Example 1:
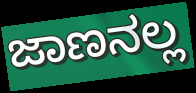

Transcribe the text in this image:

ಜಾಣನಲ್ಲ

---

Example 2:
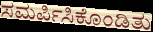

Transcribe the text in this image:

ಸಮರ್ಪಿಸಿಕೊಂಡಿತು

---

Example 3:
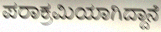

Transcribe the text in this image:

ಪರಾಕ್ರಮಿಯಾಗಿದ್ದಾನೆ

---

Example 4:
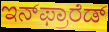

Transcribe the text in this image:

ಇನ್‌ಫ್ರಾರೆಡ್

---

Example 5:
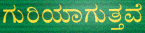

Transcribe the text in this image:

ಗುರಿಯಾಗುತ್ತವೆ